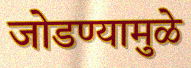
जोडण्यामुळे